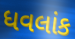
ધવલાંક